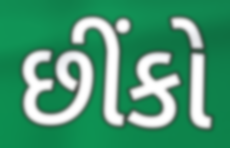
છીંકો